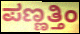
ಪಣ್ಣತ್ತಿಂ